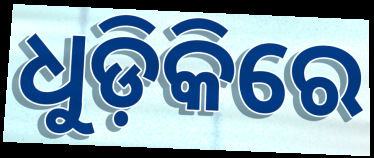
ଧୁଡ଼ିକିରେ